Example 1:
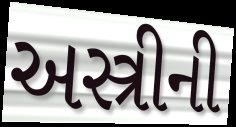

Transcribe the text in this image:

અસ્ત્રીની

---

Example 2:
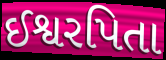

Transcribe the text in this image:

ઈશ્વરપિતા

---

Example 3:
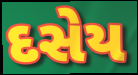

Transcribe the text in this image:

દસેય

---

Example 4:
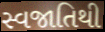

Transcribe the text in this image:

સ્વજાતિથી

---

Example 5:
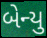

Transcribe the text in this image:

બેન્યુ